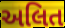
અલિત